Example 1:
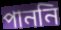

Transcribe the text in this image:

পাননি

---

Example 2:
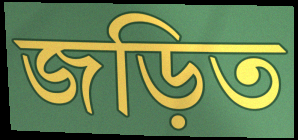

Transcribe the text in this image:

জড়িত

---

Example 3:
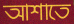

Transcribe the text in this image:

আশাতে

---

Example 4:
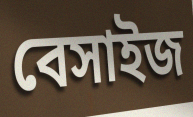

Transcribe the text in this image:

বেসাইজ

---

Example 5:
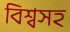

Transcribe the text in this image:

বিশ্বসহ